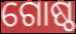
ଗୋଷ୍ଠ